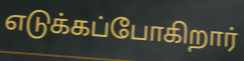
எடுக்கப்போகிறார்